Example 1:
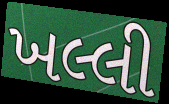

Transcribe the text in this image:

ખલ્લી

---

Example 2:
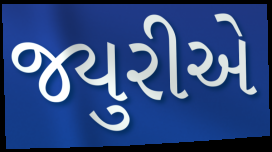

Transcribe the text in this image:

જ્યુરીએ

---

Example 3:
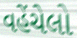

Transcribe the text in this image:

વહેંચેલો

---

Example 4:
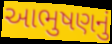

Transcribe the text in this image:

આભુષણનું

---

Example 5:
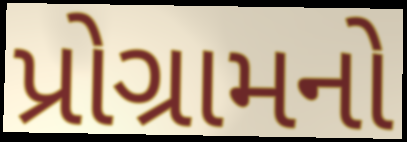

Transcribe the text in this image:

પ્રોગ્રામનો